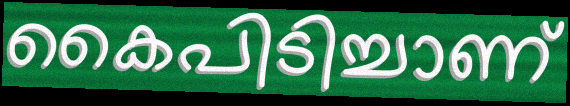
കൈപിടിച്ചാണ്